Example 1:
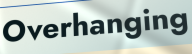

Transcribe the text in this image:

Overhanging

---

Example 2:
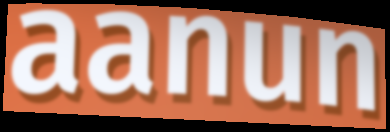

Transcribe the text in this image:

aanun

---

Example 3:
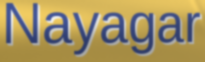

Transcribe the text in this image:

Nayagar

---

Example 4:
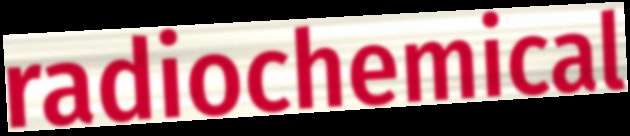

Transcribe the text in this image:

radiochemical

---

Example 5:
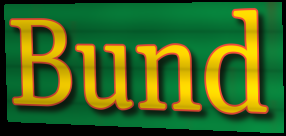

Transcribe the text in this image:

Bund